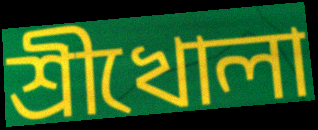
শ্রীখোলা